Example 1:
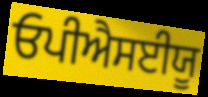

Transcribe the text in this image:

ਓਪੀਐਸਈਯੂ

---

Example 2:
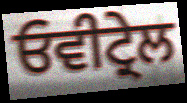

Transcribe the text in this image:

ਓਵੀਟ੍ਰੇਲ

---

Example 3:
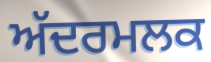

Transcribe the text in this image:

ਅੱਦਰਮਲਕ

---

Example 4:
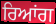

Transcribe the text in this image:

ਰਿਆਂਗ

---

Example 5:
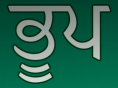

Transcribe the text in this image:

ਭੂਪ